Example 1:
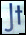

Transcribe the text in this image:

Jt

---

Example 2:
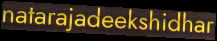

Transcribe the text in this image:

natarajadeekshidhar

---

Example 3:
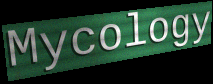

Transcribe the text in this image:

Mycology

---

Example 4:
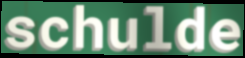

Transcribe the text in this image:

schulde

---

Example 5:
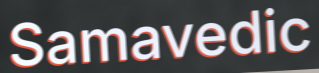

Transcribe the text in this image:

Samavedic